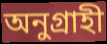
অনুগ্রাহী